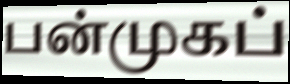
பன்முகப்